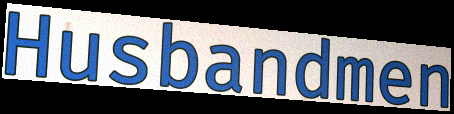
Husbandmen